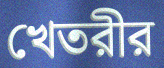
খেতরীর